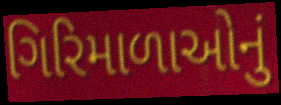
ગિરિમાળાઓનું